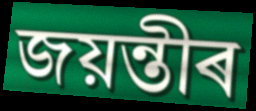
জয়ন্তীৰ